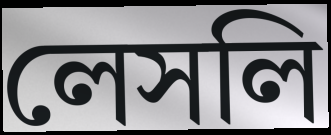
লেসলি